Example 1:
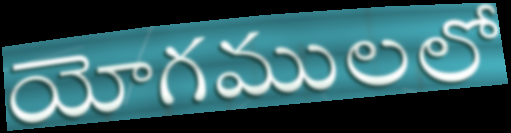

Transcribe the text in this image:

యోగములలో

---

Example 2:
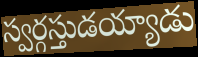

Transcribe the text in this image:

స్వర్గస్తుడయ్యాడు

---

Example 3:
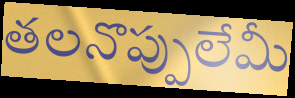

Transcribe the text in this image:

తలనొప్పులేమీ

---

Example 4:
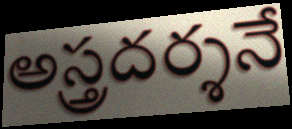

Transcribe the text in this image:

అస్త్రదర్శనే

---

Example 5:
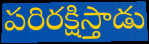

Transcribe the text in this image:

పరిరక్షిస్తాడు